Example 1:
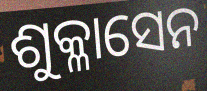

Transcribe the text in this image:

ଶୁକ୍ଳାସେନ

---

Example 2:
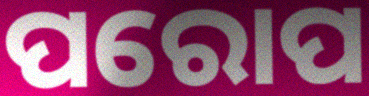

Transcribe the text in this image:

ପରୋପ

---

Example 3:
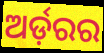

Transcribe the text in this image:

ଅର୍ଡ଼ରର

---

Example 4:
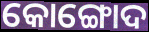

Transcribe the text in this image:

କୋଙ୍ଗୋଦ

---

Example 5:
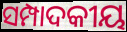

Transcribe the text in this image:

ସମ୍ପାଦକୀୟ